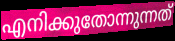
എനിക്കുതോന്നുന്നത്